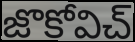
జొకోవిచ్